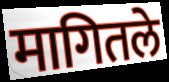
मागितले